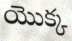
యొక్క